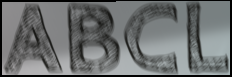
ABCL